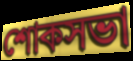
শোকসভা